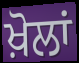
ਖ਼ੋਲਾਂ